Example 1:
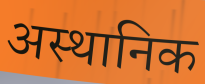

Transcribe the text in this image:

अस्थानिक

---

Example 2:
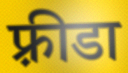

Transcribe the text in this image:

फ़्रीडा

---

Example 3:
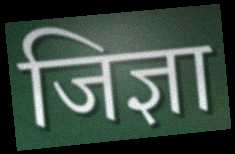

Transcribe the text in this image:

जिज्ञा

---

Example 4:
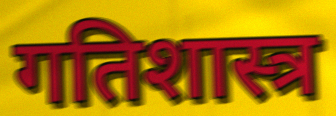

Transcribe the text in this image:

गतिशास्त्र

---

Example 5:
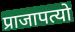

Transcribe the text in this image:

प्राजापत्यो